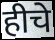
हीचे